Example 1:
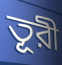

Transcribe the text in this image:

তূরী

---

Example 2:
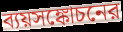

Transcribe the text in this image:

ব্যয়সঙ্কোচনের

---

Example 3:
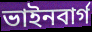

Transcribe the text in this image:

ভাইনবার্গ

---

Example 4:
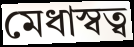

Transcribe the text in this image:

মেধাস্বত্ব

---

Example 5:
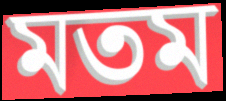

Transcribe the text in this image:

মতম